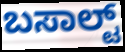
ಬಸಾಲ್ಟ್